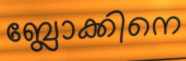
ബ്ലോക്കിനെ